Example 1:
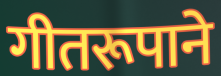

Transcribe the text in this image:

गीतरूपाने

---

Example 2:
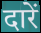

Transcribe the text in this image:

दारें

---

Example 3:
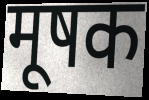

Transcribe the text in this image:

मूषक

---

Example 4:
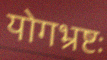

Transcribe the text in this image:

योगभ्रष्टः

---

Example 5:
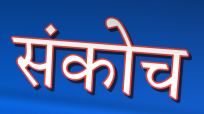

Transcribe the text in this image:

संकोच